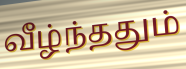
வீழ்ந்ததும்